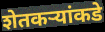
शेतकर्‍यांकडे